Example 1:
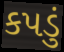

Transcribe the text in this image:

કપડું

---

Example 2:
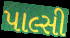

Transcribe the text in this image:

પાલ્સી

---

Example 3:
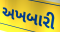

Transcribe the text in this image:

અખબારી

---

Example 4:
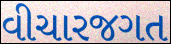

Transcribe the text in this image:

વીચારજગત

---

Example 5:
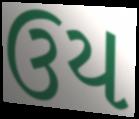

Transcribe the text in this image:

ઉય